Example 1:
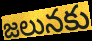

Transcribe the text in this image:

జలునకు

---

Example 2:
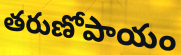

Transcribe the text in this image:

తరుణోపాయం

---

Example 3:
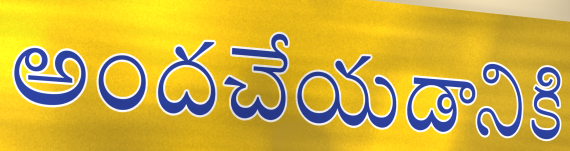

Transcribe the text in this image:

అందచేయడానికి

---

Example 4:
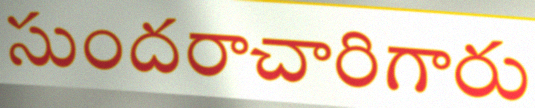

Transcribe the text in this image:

సుందరాచారిగారు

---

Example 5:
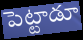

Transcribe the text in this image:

పెట్టాడూ